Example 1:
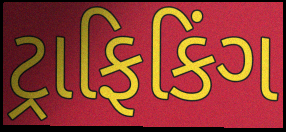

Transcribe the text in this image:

ટ્રાફિકિંગ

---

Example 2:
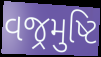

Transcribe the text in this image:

વજ્રમુષ્ટિ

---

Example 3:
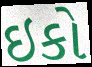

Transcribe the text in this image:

ઇકો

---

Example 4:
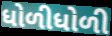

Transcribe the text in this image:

ધોળીધોળી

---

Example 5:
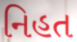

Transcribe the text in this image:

નિહત